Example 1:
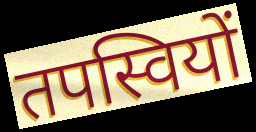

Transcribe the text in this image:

तपस्वियों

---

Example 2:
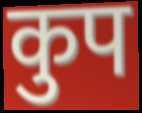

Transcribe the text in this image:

कुप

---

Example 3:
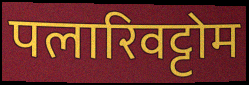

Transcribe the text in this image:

पलारिवट्टोम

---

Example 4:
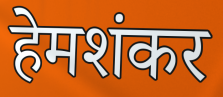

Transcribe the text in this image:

हेमशंकर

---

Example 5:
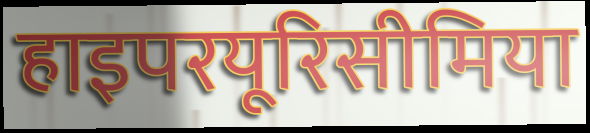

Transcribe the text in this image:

हाइपरयूरिसीमिया